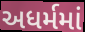
અધર્મમાં